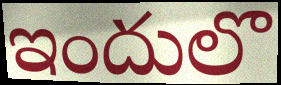
ఇందులొ